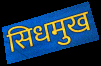
सिधमुख